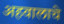
अहवालाचे